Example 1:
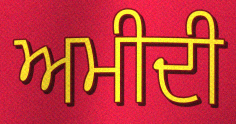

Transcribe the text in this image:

ਅਮੀਦੀ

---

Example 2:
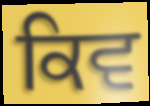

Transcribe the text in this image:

ਕਿਵ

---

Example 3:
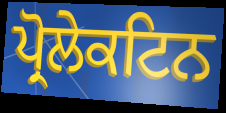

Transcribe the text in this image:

ਪ੍ਰੋਲੇਕਟਿਨ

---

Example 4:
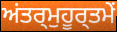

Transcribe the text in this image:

ਅਂਤਰ੍ਮੁਹੂਰ੍ਤਮੇਂ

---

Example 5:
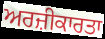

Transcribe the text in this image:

ਅਰਜ਼ੀਕਾਰਤਾ